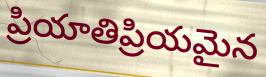
ప్రియాతిప్రియమైన